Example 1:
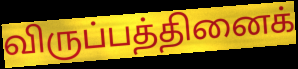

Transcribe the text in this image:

விருப்பத்தினைக்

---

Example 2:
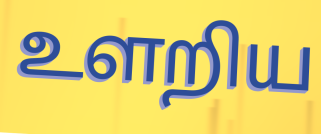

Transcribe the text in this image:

உளறிய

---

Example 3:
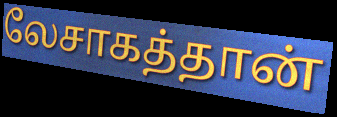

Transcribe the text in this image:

லேசாகத்தான்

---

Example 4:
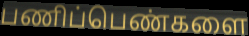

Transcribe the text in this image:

பணிப்பெண்களை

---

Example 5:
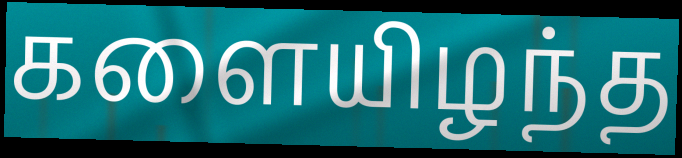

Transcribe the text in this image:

களையிழந்த